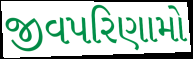
જીવપરિણામો